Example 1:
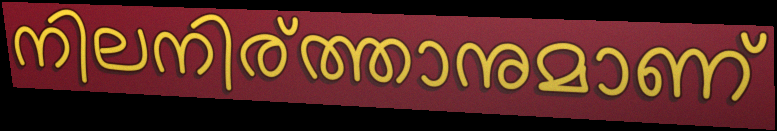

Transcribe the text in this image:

നിലനിര്ത്താനുമാണ്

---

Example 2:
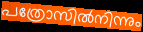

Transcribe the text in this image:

പത്രോസിൽനിന്നും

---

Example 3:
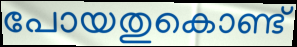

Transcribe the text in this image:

പോയതുകൊണ്ട്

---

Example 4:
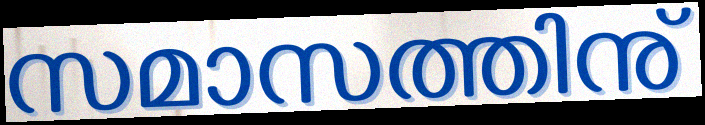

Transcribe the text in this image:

സമാസത്തിനു്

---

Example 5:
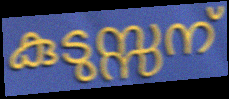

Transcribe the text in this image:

കുടുസ്സന്